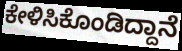
ಕೇಳಿಸಿಕೊಂಡಿದ್ದಾನೆ